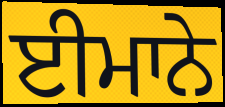
ਈਮਾਨੇ